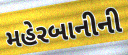
મહેરબાનીની